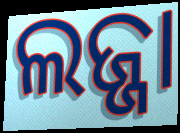
ଲଜ୍ଜା